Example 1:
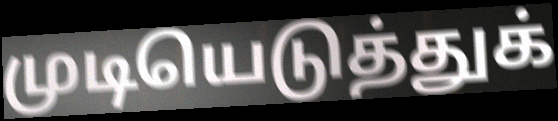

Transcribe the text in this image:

முடியெடுத்துக்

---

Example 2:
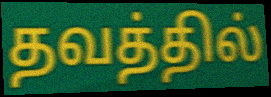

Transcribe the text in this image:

தவத்தில்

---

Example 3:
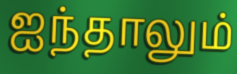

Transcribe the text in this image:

ஐந்தாலும்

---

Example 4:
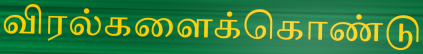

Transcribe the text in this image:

விரல்களைக்கொண்டு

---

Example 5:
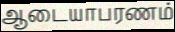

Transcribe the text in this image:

ஆடையாபரணம்